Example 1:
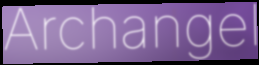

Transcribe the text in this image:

Archangel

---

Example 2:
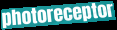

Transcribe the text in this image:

photoreceptor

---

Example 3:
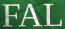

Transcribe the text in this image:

FAL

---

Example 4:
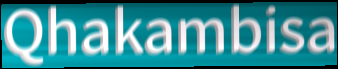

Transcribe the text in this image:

Qhakambisa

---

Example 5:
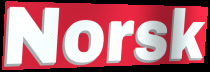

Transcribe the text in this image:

Norsk